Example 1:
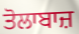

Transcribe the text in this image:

ਤੋਲਾਬਾਜ਼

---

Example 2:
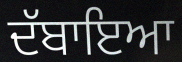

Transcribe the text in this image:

ਦੱਬਾਇਆ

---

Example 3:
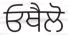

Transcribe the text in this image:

ਓਥੈਲੋ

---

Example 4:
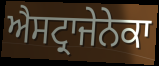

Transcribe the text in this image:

ਐਸਟ੍ਰਾਜੇਨੇਕਾ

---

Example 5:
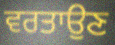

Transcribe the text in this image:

ਵਰਤਾਉਣ